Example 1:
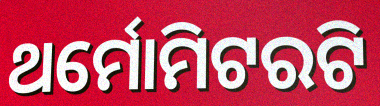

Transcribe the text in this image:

ଥର୍ମୋମିଟରଟି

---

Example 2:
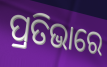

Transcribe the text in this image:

ପ୍ରତିଭାରେ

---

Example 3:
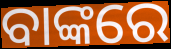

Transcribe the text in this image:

ବାଙ୍କରେ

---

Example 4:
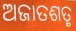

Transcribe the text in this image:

ଅଜାତଶତୃ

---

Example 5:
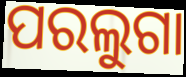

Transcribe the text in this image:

ପରଲୁଗା